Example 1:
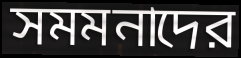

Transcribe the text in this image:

সমমনাদের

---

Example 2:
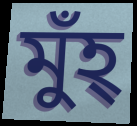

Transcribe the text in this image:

মুঁহ্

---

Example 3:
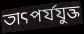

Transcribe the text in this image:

তাৎপর্যযুক্ত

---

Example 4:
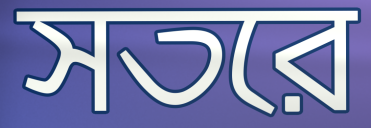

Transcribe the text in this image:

সতরে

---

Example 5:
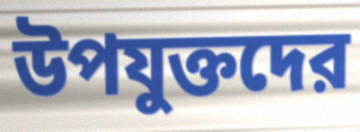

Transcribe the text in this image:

উপযুক্তদের